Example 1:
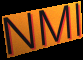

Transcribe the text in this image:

NMI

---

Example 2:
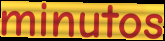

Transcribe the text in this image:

minutos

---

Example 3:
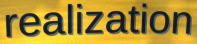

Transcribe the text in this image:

realization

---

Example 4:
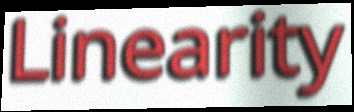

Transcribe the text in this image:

Linearity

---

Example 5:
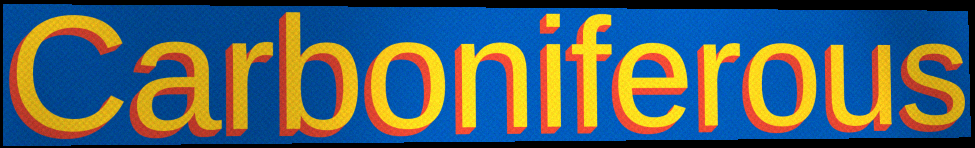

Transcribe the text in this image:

Carboniferous